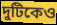
দুটিকেও